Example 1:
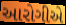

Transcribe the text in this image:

આરોગીએ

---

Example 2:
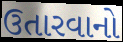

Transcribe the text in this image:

ઉતારવાનો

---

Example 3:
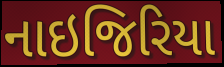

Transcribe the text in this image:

નાઇજિરિયા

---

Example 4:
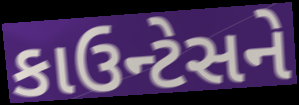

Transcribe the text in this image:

કાઉન્ટેસને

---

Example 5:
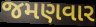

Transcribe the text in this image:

જમણવાર